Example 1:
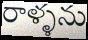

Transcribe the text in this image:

రాళ్ళను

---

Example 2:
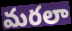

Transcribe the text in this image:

మరలా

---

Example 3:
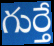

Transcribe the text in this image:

గుర్తే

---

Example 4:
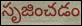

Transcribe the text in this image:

సృజించడం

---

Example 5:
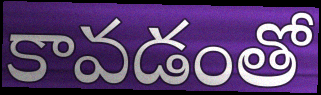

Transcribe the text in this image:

కావడంతో